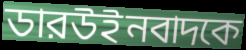
ডারউইনবাদকে